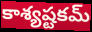
కాశ్యష్టకమ్